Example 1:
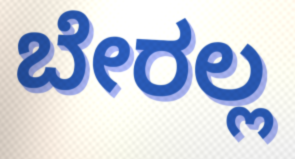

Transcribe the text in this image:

ಬೇರಲ್ಲ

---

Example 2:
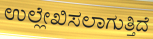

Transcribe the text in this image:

ಉಲ್ಲೇಖಿಸಲಾಗುತ್ತಿದೆ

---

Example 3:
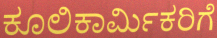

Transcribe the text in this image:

ಕೂಲಿಕಾರ್ಮಿಕರಿಗೆ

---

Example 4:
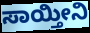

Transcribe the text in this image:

ಸಾಯ್ತೀನಿ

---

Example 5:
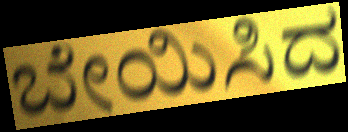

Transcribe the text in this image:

ಬೇಯಿಸಿದ